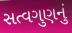
સત્વગુણનું